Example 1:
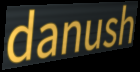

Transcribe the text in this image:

danush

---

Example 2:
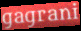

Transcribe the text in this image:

gagrani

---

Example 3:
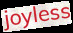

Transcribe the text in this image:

joyless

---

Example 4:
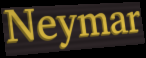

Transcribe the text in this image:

Neymar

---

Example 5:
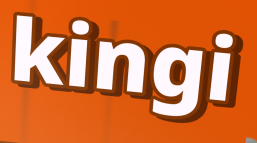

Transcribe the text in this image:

kingi